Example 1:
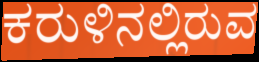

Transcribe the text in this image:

ಕರುಳಿನಲ್ಲಿರುವ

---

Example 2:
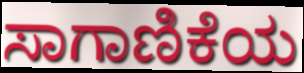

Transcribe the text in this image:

ಸಾಗಾಣಿಕೆಯ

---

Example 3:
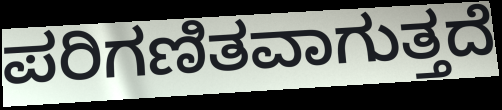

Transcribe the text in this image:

ಪರಿಗಣಿತವಾಗುತ್ತದೆ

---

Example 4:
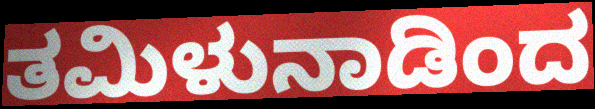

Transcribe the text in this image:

ತಮಿಳುನಾಡಿಂದ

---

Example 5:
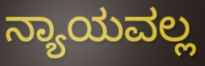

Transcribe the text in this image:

ನ್ಯಾಯವಲ್ಲ